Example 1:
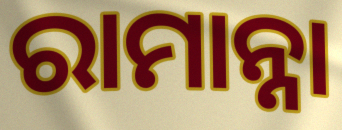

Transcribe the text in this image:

ରାମାନ୍ନା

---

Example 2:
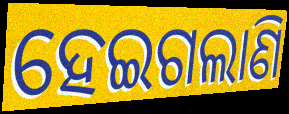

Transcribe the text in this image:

ହେଇଗଲାଣି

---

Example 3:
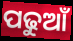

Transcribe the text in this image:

ପଢୁଆଁ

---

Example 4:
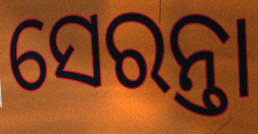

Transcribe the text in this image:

ସେରନ୍ତା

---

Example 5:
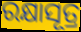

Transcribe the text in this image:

ରକ୍ଷାସୂତ୍ର